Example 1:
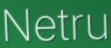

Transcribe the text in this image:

Netru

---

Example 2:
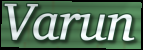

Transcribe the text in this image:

Varun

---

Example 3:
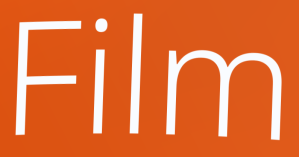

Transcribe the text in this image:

Film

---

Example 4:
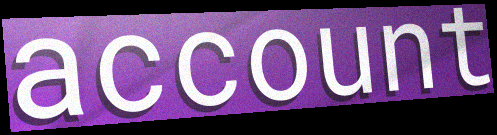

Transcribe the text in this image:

account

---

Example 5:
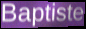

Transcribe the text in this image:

Baptiste